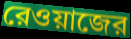
রেওয়াজের